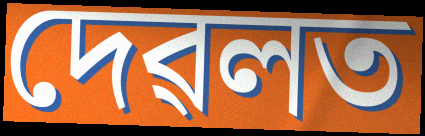
দেৱলত